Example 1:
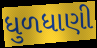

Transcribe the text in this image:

ધુળધાણી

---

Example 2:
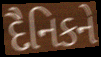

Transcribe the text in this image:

દૈનિકને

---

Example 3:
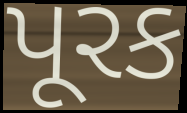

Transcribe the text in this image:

પૂરક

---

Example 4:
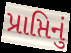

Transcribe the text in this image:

પ્રાપ્તિનું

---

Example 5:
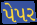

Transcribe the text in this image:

પેપર